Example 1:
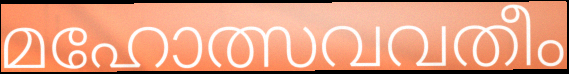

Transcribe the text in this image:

മഹോത്സവവതീം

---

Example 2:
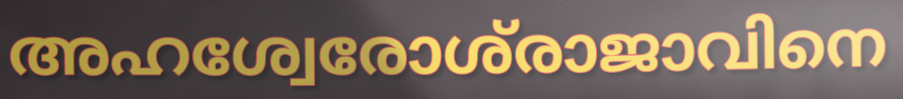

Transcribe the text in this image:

അഹശ്വേരോശ്‌രാജാവിനെ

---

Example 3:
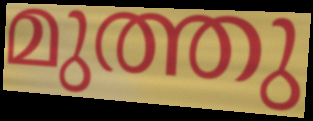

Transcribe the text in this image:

മുത്തു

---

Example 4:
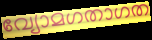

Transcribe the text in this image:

വ്യോമഗതാഗത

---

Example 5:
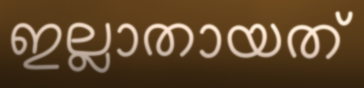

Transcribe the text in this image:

ഇല്ലാതായത്